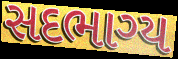
સદભાગ્ય